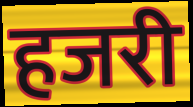
हजरी